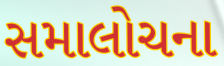
સમાલોચના